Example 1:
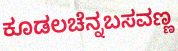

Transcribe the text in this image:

ಕೂಡಲಚೆನ್ನಬಸವಣ್ಣ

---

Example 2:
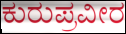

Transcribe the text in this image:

ಕುರುಪ್ರವೀರ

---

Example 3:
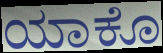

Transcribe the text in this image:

ಯಾಕೊ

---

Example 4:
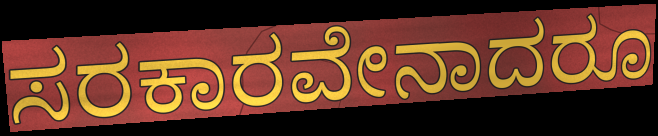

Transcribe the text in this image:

ಸರಕಾರವೇನಾದರೂ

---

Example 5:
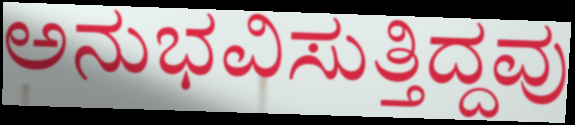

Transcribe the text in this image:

ಅನುಭವಿಸುತ್ತಿದ್ದವು